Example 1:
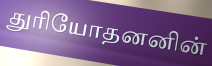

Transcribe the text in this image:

துரியோதனனின்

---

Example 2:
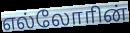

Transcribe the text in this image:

எல்லோரின்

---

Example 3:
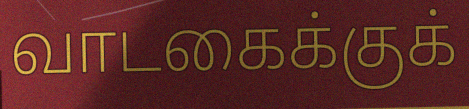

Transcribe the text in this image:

வாடகைக்குக்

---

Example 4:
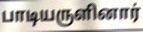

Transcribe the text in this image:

பாடியருளினார்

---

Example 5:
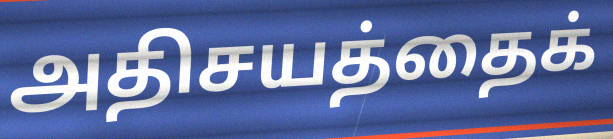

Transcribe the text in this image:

அதிசயத்தைக்